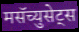
मसॅच्युसेट्स